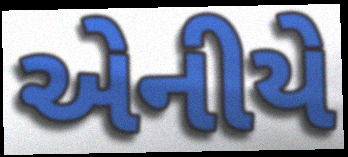
એનીયે